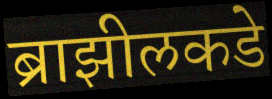
ब्राझीलकडे